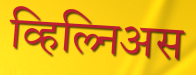
व्हिल्निअस